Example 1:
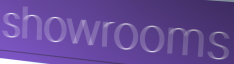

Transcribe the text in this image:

showrooms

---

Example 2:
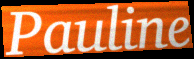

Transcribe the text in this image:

Pauline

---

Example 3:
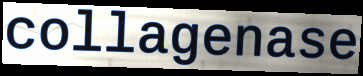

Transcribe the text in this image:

collagenase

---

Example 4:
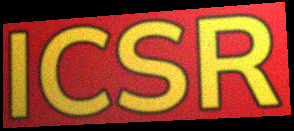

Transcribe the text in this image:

ICSR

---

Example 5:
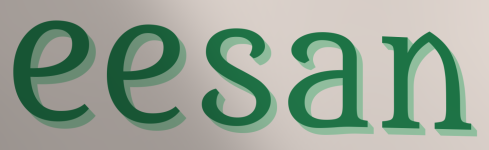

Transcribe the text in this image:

eesan